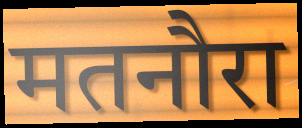
मतनौरा